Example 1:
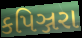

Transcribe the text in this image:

કપિઞ્જરા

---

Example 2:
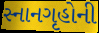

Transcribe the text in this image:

સ્નાનગૃહોની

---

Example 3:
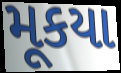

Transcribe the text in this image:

મૂકયા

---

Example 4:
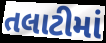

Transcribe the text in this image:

તલાટીમાં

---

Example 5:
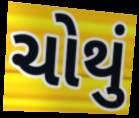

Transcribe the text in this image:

ચોથું